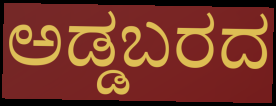
ಅಡ್ಡಬರದ